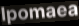
Ipomaea